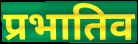
प्रभातिव